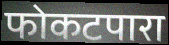
फोकटपारा